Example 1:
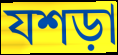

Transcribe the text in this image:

যশড়া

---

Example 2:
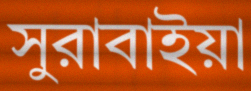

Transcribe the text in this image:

সুরাবাইয়া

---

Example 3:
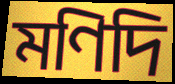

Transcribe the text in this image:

মণিদি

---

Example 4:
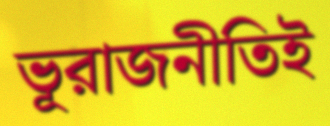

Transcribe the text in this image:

ভূরাজনীতিই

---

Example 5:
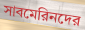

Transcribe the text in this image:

সাবমেরিনদের